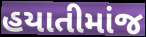
હયાતીમાંજ